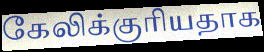
கேலிக்குரியதாக